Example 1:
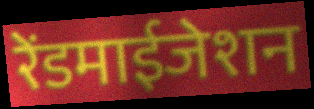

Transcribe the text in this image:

रेंडमाईजेशन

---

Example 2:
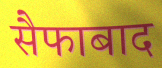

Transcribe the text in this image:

सैफाबाद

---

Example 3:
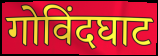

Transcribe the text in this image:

गोविंदघाट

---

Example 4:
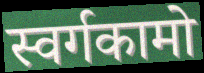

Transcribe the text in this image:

स्वर्गकामो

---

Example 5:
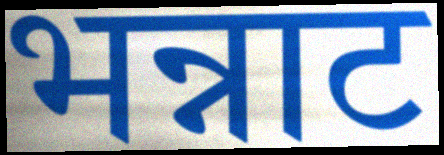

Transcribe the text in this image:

भन्नाट